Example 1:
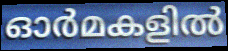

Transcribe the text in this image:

ഓർമകളിൽ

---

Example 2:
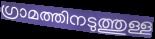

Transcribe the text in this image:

ഗ്രാമത്തിനടുത്തുള്ള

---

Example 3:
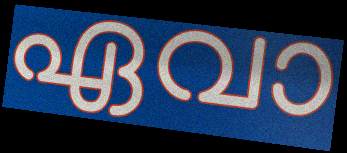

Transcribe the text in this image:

ഏവാ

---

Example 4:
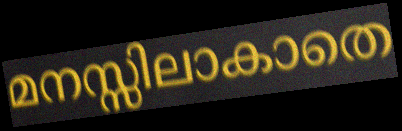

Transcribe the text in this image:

മനസ്സിലാകാതെ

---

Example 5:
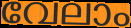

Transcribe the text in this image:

വേലാം